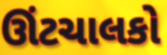
ઊંટચાલકો